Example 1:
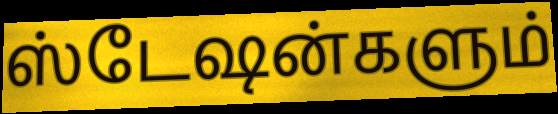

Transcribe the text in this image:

ஸ்டேஷன்களும்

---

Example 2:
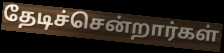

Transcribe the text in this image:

தேடிச்சென்றார்கள்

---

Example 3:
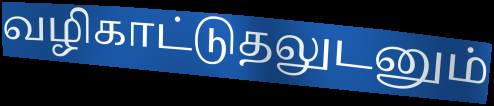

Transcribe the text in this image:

வழிகாட்டுதலுடனும்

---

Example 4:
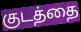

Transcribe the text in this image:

குடத்தை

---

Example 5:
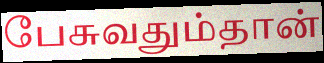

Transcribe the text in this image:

பேசுவதும்தான்